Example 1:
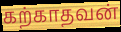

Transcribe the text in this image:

கற்காதவன்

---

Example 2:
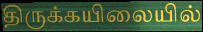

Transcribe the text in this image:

திருக்கயிலையில்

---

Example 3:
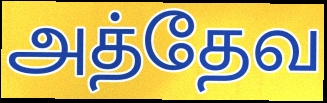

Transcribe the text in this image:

அத்தேவ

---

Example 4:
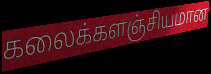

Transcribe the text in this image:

கலைக்களஞ்சியமான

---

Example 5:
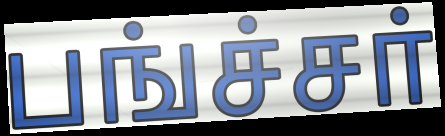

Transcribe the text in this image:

பங்ச்சர்